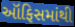
ઑફિસમાંથી